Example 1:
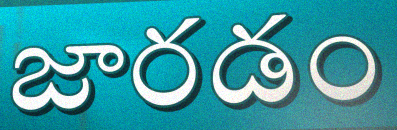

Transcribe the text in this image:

జారడం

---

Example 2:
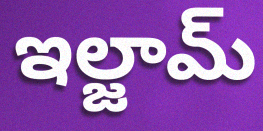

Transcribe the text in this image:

ఇల్జామ్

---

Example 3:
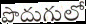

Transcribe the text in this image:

పొదుగులో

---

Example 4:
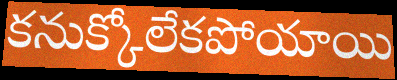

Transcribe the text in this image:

కనుక్కోలేకపోయాయి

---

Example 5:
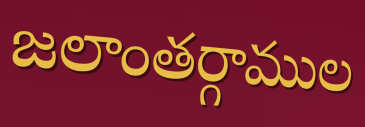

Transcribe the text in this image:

జలాంతర్గాముల